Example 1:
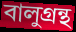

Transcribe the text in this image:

বালুগ্রন্থ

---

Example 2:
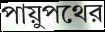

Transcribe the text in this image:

পায়ুপথের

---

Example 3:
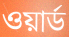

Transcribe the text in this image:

ওয়ার্ড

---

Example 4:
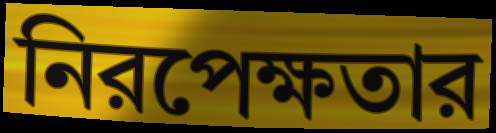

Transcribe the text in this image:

নিরপেক্ষতার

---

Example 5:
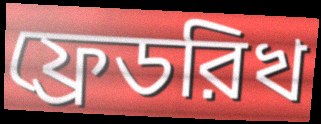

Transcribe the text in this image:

ফ্রেডরিখ